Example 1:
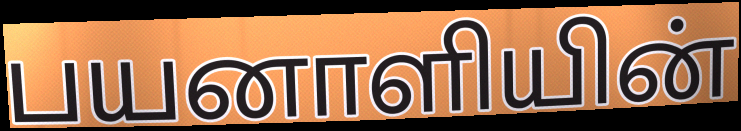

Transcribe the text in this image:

பயனாளியின்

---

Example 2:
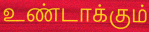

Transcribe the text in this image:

உண்டாக்கும்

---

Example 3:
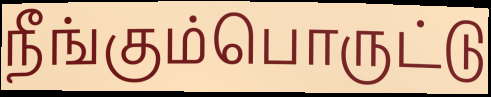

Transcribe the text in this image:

நீங்கும்பொருட்டு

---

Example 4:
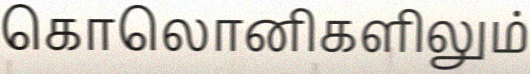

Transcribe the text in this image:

கொலொனிகளிலும்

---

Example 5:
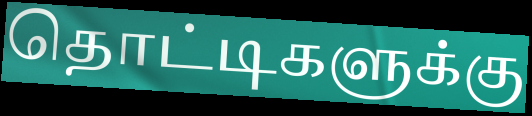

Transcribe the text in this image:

தொட்டிகளுக்கு